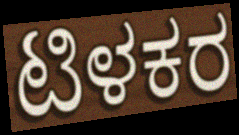
ಟಿಳಕರ